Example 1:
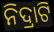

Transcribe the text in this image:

ନିଦ୍ରାଟି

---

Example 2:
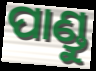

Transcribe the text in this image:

ପାଣ୍ଡୁ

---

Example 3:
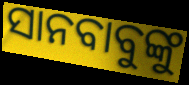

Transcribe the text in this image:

ସାନବାବୁଙ୍କୁ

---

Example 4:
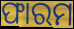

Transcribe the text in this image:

ଫାରମ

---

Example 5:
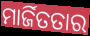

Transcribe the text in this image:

ମାର୍ଜିତତାର